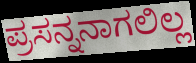
ಪ್ರಸನ್ನನಾಗಲಿಲ್ಲ